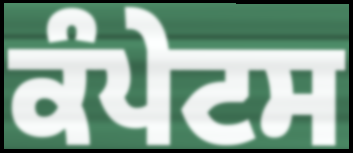
ਕੰਪੇਟਸ